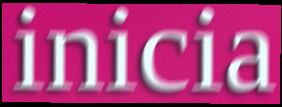
inicia